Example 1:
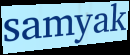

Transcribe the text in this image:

samyak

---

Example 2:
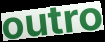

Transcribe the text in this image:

outro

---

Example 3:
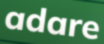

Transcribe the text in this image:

adare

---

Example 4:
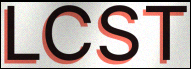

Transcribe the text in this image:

LCST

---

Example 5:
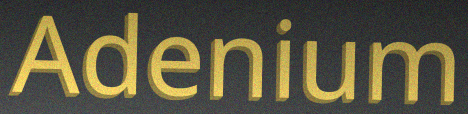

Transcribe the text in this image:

Adenium